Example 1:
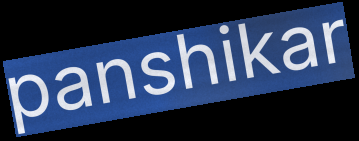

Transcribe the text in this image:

panshikar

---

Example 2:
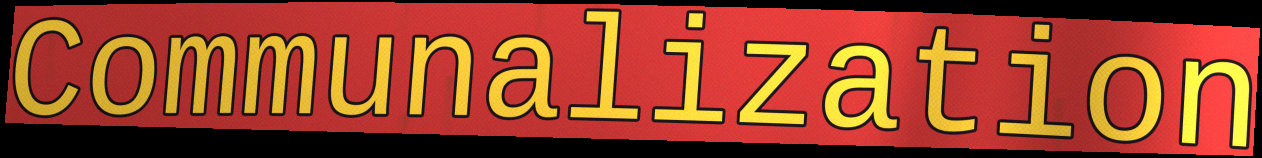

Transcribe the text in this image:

Communalization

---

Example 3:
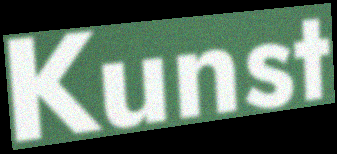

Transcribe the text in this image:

Kunst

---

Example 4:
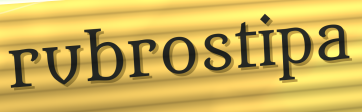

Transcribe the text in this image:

rubrostipa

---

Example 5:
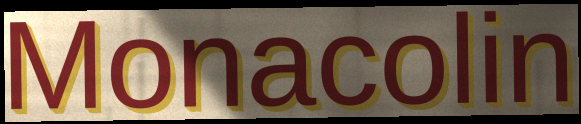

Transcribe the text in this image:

Monacolin